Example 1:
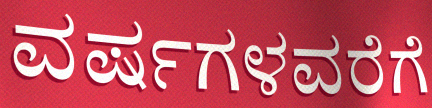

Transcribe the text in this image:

ವರ್ಷಗಳವರೆಗೆ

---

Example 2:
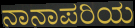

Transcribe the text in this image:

ನಾನಾಪರಿಯ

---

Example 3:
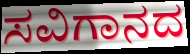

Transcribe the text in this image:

ಸವಿಗಾನದ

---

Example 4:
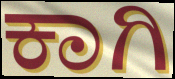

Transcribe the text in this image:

ಕಾಗಿ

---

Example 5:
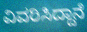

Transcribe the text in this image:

ವಿವರಿಸಿದ್ದಾನೆ